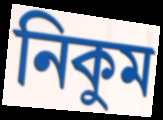
নিকুম